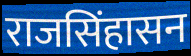
राजसिंहासन